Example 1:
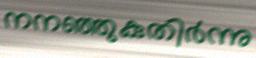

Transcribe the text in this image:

നനഞ്ഞുകുതിർന്നു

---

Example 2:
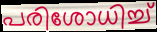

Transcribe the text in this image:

പരിശോധിച്ച്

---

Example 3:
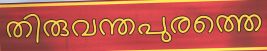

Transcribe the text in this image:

തിരുവന്തപുരത്തെ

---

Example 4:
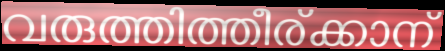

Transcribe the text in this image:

വരുത്തിത്തീര്ക്കാന്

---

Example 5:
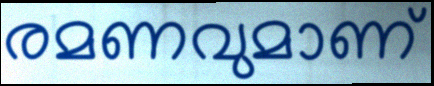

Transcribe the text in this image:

രമണവുമാണ്